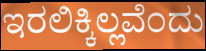
ಇರಲಿಕ್ಕಿಲ್ಲವೆಂದು